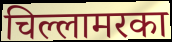
चिल्लामरका